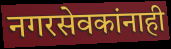
नगरसेवकांनाही